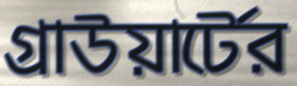
গ্রাউয়ার্টের